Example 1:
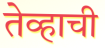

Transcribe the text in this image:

तेव्हाची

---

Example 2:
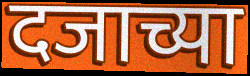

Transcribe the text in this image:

दजाच्या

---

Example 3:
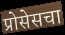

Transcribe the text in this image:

प्रोसेसचा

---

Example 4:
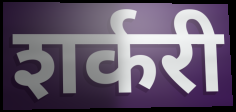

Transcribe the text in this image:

शर्करी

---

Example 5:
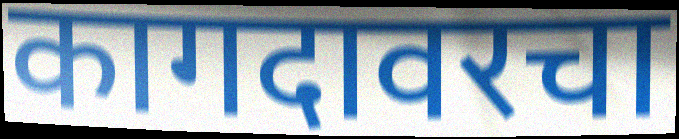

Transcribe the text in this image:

कागदावरचा